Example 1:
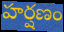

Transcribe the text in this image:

హర్షణం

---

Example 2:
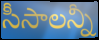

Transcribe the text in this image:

సీసాలన్నీ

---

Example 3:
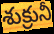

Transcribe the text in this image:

శుక్రునీ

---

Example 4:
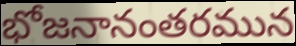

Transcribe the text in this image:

భోజనానంతరమున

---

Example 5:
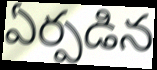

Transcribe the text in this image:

ఏర్పడిన